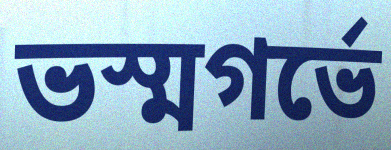
ভস্মগর্ভে